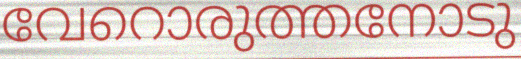
വേറൊരുത്തനോടു